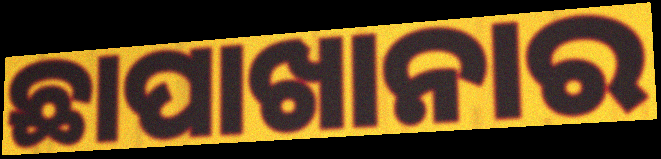
ଛାପାଖାନାର